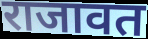
राजावत